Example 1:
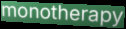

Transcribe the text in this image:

monotherapy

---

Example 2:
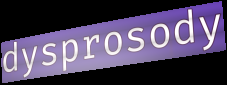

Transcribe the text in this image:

dysprosody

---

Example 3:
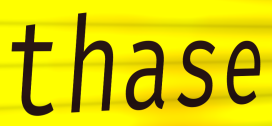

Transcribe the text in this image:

thase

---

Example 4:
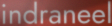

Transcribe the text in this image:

indraneel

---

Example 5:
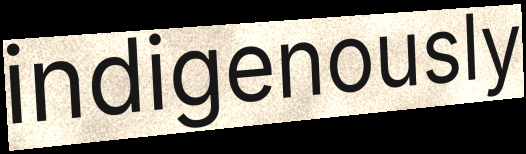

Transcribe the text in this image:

indigenously